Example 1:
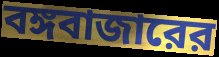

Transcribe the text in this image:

বঙ্গবাজারের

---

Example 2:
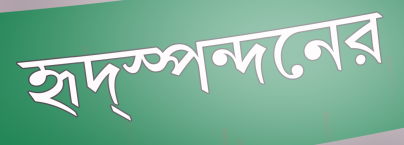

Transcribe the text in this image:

হৃদ্স্পন্দনের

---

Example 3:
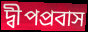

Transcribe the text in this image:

দ্বীপপ্রবাস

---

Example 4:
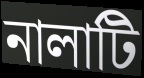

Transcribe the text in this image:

নালাটি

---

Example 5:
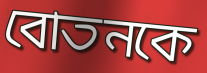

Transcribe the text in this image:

বোতনকে